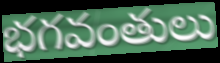
భగవంతులు